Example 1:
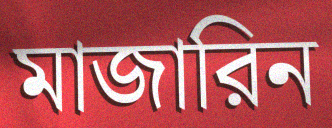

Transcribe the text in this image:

মাজারিন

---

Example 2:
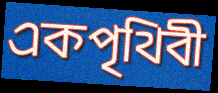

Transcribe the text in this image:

একপৃথিবী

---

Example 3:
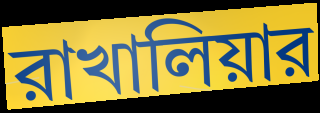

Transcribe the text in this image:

রাখালিয়ার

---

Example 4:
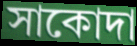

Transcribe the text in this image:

সাকোদা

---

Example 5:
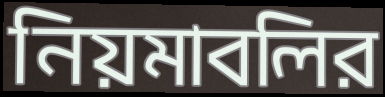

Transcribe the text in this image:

নিয়মাবলির